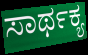
ಸಾರ್ಥಕ್ಯ